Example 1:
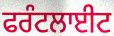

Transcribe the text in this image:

ਫਰੰਟਲਾਈਟ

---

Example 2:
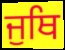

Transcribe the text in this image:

ਜੁਥਿ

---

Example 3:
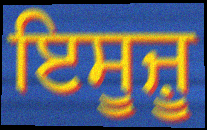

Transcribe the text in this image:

ਇਸੂਜ਼ੂ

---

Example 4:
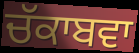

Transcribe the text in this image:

ਚੱਕਾਬਵਾ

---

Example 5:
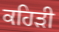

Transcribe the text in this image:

ਕਹਿੜੀ